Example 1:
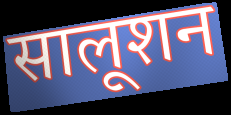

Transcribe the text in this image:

सालूशन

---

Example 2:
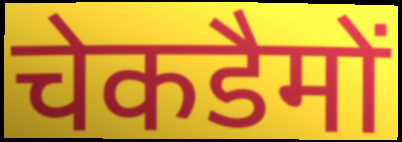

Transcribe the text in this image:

चेकडैमों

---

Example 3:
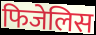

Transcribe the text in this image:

फिजेलिस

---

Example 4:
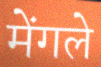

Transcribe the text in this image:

मेंगले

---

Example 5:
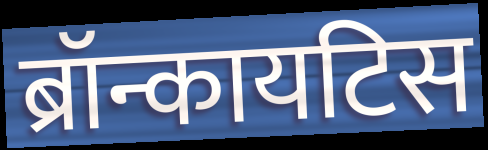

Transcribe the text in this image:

ब्रॉन्कायटिस